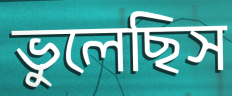
ভুলেছিস